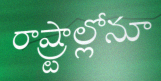
రాష్ర్టాల్లోనూ